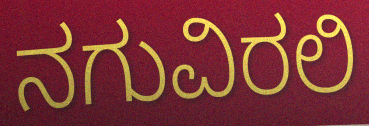
ನಗುವಿರಲಿ